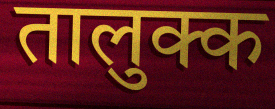
तालुक्क